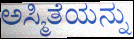
ಅಸ್ಮಿತೆಯನ್ನು